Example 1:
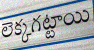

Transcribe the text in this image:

లెక్కగట్టాయి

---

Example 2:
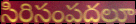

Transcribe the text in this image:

సిరిసంపదలూ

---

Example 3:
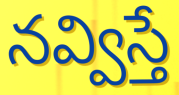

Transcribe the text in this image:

నవ్విస్తే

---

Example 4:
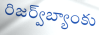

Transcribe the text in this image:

రిజర్వ్‌బ్యాంకు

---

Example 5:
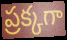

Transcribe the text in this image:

ప్రక్కగా